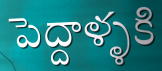
పెద్దాళ్ళకి